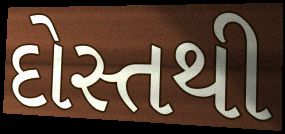
દોસ્તથી